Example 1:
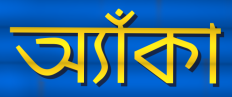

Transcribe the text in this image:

অ্যাঁকা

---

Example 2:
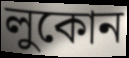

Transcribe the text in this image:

লুকোন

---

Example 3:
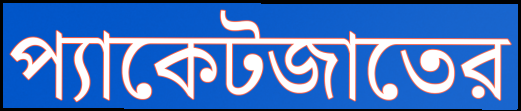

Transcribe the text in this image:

প্যাকেটজাতের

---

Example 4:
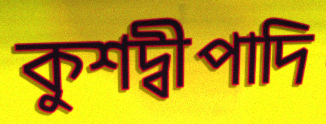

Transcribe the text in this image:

কুশদ্বীপাদি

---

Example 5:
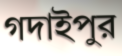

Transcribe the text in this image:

গদাইপুর